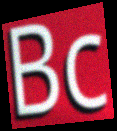
Bc